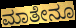
ಮಾತೇನೂ